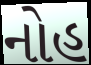
નોહ